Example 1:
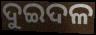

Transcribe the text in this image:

ଦୁଇଦଳ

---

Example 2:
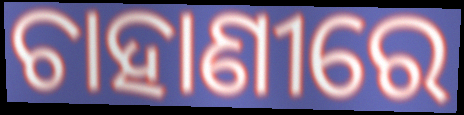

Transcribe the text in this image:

ଚାହାଣୀରେ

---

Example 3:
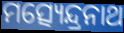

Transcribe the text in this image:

ମତ୍ସ୍ୟେନ୍ଦ୍ରନାଥ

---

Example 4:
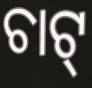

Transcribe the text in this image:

ଚାଟ୍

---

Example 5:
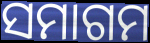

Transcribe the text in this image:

ସମାଗମ